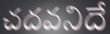
చదవనిదే